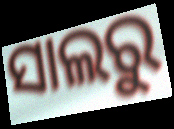
ସାଲରୁ